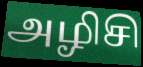
அழிசி